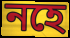
নহে